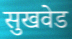
सुखवेड